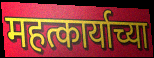
महत्कार्याच्या